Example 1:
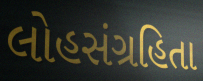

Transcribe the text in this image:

લોહસંગ્રહિતા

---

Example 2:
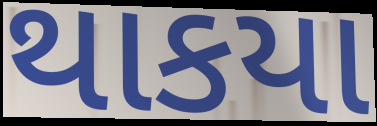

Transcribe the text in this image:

થાકયા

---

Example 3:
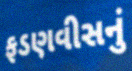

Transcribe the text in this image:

ફડણવીસનું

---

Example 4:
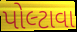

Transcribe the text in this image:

પોલ્ટાવા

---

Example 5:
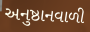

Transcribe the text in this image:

અનુષ્ઠાનવાળી